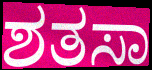
ಶತಸಾ